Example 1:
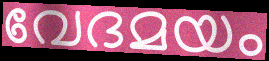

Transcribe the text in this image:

വേദമയം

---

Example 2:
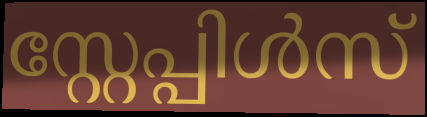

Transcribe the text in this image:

സ്റ്റേപ്പിൾസ്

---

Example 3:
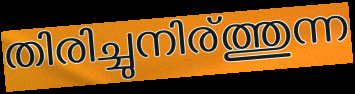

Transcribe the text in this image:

തിരിച്ചുനിര്ത്തുന്ന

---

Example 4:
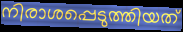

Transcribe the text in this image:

നിരാശപ്പെടുത്തിയത്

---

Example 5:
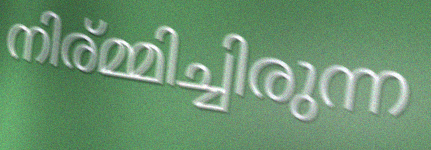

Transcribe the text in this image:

നിര്മ്മിച്ചിരുന്ന